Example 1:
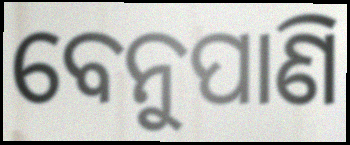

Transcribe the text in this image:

ବେନୁପାଣି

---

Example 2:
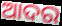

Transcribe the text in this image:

ଆଦର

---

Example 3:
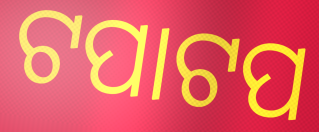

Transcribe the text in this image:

ଟପାଟପ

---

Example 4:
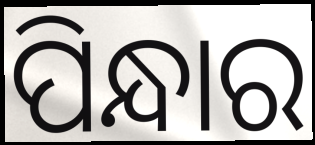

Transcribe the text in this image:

ପିନ୍ଧାର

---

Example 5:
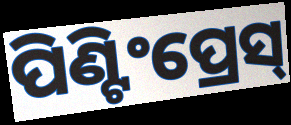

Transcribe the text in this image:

ପିଣ୍ଟିଂପ୍ରେସ୍